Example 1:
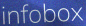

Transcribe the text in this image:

infobox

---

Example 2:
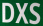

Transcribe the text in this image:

DXS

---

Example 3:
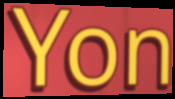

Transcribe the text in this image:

Yon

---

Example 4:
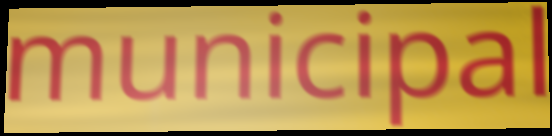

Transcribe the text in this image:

municipal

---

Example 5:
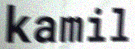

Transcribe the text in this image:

kamil